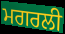
ਮਗਰਲੀ